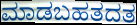
ಮಾಡಬಹತದತ